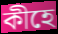
কীহে